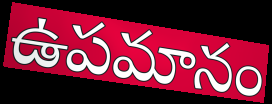
ఉపమానం